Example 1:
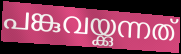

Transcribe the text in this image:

പങ്കുവയ്ക്കുന്നത്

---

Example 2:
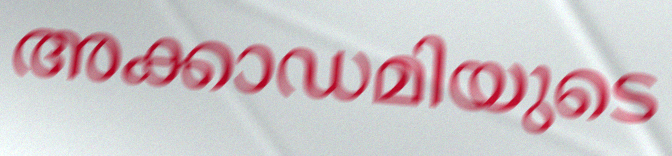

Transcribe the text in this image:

അക്കാഡമിയുടെ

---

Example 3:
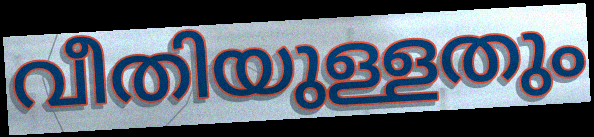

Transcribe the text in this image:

വീതിയുള്ളതും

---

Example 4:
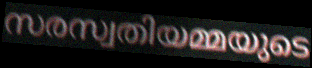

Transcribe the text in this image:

സരസ്വതിയമ്മയുടെ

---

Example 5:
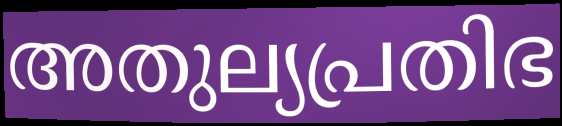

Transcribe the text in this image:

അതുല്യപ്രതിഭ